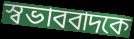
স্বভাববাদকে